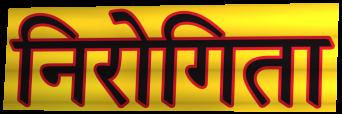
निरोगिता